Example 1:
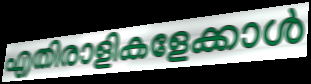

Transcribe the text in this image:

എതിരാളികളേക്കാൾ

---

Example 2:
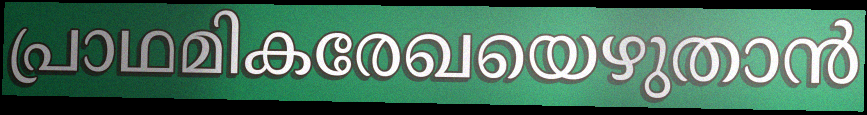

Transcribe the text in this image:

പ്രാഥമികരേഖയെഴുതാൻ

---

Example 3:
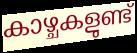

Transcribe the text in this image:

കാഴ്ചകളുണ്ട്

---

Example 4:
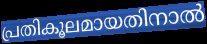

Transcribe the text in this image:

പ്രതികൂലമായതിനാൽ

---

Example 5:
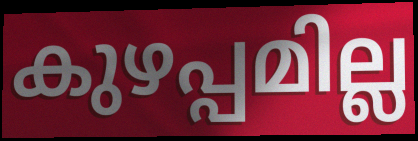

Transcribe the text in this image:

കുഴപ്പമില്ല